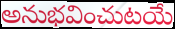
అనుభవించుటయే